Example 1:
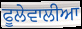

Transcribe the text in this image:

ਫੂਲੇਵਾਲੀਆ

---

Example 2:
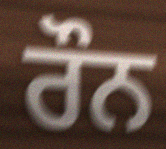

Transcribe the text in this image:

ਰੌਨ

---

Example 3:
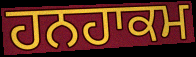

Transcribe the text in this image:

ਹਨਹਾਕਮ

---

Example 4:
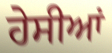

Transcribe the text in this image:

ਹੇਸੀਆਂ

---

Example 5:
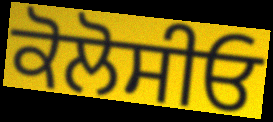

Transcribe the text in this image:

ਕੋਲੋਸੀਓ